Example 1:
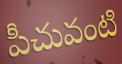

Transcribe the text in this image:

పీచువంటి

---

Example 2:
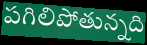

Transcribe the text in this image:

పగిలిపోతున్నది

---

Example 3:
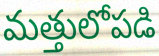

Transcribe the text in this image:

మత్తులోపడి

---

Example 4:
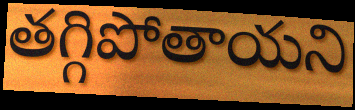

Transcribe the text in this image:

తగ్గిపోతాయని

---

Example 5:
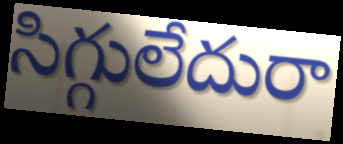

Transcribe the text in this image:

సిగ్గులేదురా